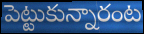
పెట్టుకున్నారంట